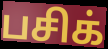
பசிக்